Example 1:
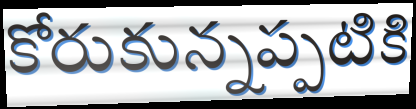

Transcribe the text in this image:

కోరుకున్నప్పటికి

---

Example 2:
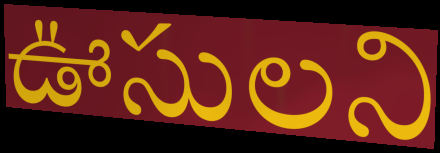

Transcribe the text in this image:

ఊసులని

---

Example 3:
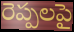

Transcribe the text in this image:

రెప్పలపై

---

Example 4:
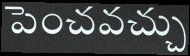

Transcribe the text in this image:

పెంచవచ్చు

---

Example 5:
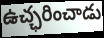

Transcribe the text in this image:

ఉచ్ఛరించాడు